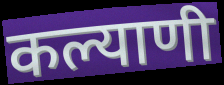
कल्याणी